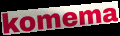
komema